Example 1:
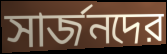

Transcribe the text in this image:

সার্জনদের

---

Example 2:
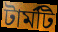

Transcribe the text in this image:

টার্মটি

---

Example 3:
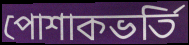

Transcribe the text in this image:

পোশাকভর্তি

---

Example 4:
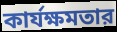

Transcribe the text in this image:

কার্যক্ষমতার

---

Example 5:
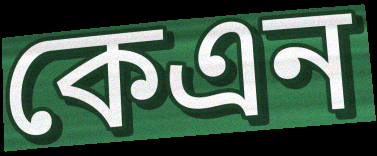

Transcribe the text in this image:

কেএন